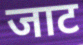
जाट